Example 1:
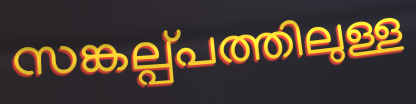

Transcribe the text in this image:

സങ്കല്പ്പത്തിലുള്ള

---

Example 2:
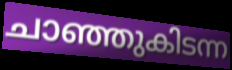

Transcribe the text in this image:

ചാഞ്ഞുകിടന്ന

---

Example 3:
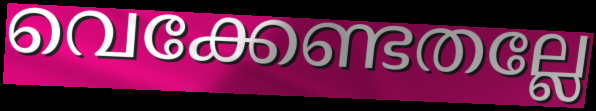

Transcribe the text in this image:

വെക്കേണ്ടതല്ലേ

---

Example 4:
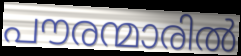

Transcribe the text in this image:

പൗരന്മാരിൽ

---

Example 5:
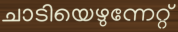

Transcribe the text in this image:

ചാടിയെഴുന്നേറ്റ്